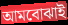
আমবোঝাই